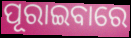
ପୂରାଇବାରେ